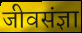
जीवसंज्ञा